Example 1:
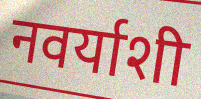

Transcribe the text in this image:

नवर्याशी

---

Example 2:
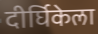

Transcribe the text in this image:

दीर्घिकेला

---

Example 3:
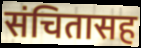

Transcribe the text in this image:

संचितासह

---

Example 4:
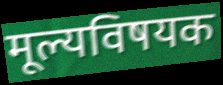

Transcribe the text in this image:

मूल्यविषयक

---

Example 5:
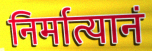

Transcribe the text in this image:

निर्मात्यानं